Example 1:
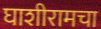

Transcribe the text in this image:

घाशीरामचा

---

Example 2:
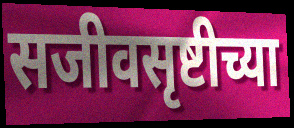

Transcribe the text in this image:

सजीवसृष्टीच्या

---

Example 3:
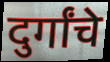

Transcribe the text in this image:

दुर्गांचे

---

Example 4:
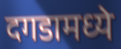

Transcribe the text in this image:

दगडामध्ये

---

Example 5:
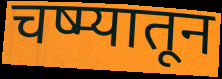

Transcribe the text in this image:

चष्म्यातून